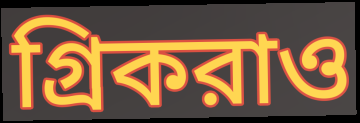
গ্রিকরাও